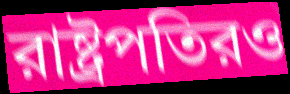
রাষ্ট্রপতিরও